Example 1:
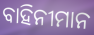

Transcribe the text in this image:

ବାହିନୀମାନ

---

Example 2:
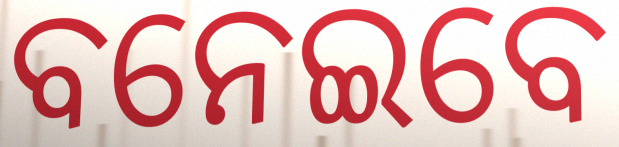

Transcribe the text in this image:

ବନେଇବେ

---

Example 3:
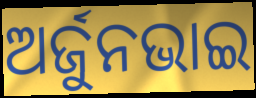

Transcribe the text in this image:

ଅର୍ଜୁନଭାଇ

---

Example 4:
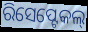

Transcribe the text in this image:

ରିସେପ୍ଟେକଲ୍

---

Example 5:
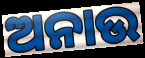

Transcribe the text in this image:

ଅନାଉ